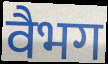
वैभग